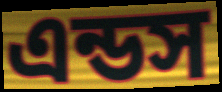
এন্ডস